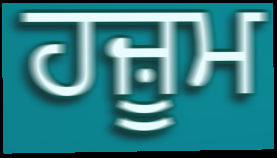
ਹਜ਼ੂਮ